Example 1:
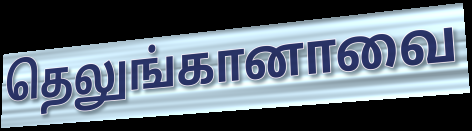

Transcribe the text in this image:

தெலுங்கானாவை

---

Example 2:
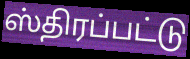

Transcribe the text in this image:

ஸ்திரப்பட்டு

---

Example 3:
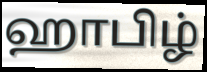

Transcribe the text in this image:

ஹாபிழ்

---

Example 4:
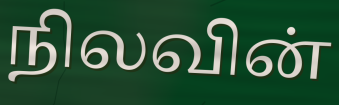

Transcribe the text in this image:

நிலவின்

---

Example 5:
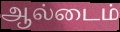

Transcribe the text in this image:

ஆல்டைம்